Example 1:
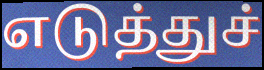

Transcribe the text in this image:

எடுத்துச்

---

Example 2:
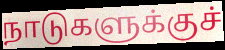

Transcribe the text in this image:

நாடுகளுக்குச்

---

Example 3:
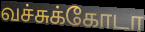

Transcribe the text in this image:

வச்சுக்கோடா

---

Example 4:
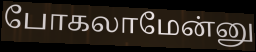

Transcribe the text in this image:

போகலாமேன்னு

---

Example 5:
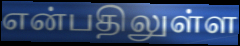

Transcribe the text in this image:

என்பதிலுள்ள